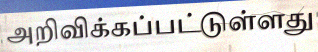
அறிவிக்கப்பட்டுள்ளது